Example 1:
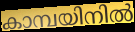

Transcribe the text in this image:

കാമ്പയിനിൽ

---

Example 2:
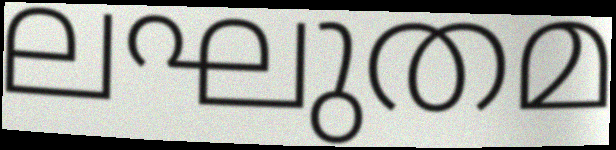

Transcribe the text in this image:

ലഘുതമ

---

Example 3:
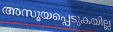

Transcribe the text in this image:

അസൂയപ്പെടുകയില്ല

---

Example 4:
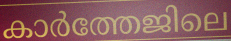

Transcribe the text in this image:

കാർത്തേജിലെ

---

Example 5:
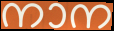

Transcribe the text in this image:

നാന